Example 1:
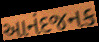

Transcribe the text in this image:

આનંદજનક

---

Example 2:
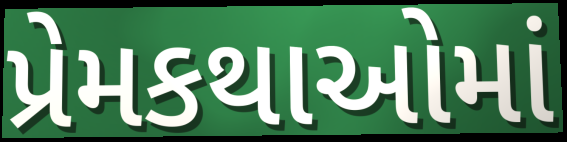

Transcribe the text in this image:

પ્રેમકથાઓમાં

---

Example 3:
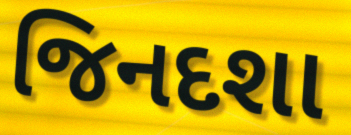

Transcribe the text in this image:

જિનદશા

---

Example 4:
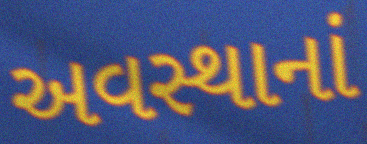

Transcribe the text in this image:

અવસ્થાનાં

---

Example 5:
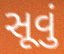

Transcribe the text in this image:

સૂવું